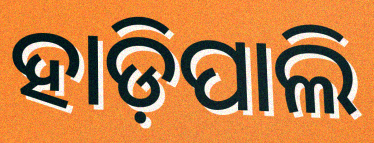
ହାଡ଼ିପାଲି